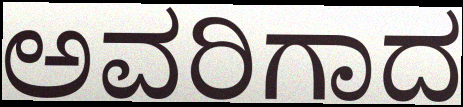
ಅವರಿಗಾದ